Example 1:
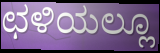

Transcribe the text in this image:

ಛಳಿಯಲ್ಲೂ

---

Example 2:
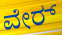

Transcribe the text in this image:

ವೇರ್‍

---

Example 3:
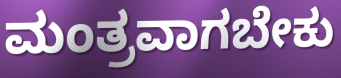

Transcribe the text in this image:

ಮಂತ್ರವಾಗಬೇಕು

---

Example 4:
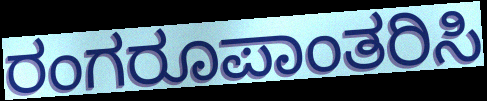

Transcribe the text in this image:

ರಂಗರೂಪಾಂತರಿಸಿ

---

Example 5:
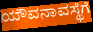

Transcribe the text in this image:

ಯೌವನಾವಸ್ಥೆಗೆ